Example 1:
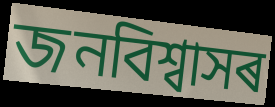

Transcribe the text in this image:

জনবিশ্বাসৰ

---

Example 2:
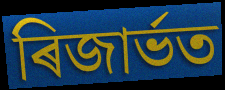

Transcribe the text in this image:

ৰিজাৰ্ভত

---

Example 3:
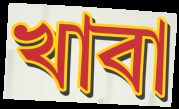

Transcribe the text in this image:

খাবা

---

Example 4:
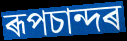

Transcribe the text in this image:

ৰূপচান্দৰ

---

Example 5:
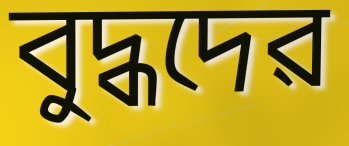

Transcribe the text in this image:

বুদ্ধদেৱ